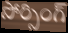
సోర్సింగ్